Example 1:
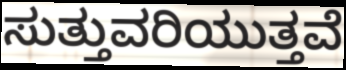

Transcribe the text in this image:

ಸುತ್ತುವರಿಯುತ್ತವೆ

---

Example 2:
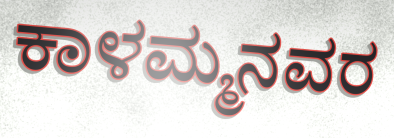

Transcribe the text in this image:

ಕಾಳಮ್ಮನವರ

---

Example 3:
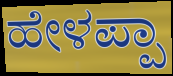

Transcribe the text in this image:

ಹೇಳಪ್ಪಾ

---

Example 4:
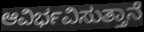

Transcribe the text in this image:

ಆವಿರ್ಭವಿಸುತ್ತಾನೆ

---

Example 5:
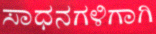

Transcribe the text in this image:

ಸಾಧನಗಳಿಗಾಗಿ